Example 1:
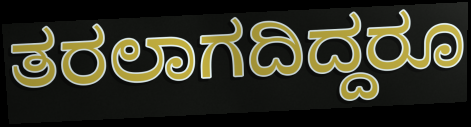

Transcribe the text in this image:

ತರಲಾಗದಿದ್ದರೂ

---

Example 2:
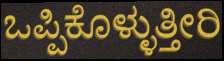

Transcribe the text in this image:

ಒಪ್ಪಿಕೊಳ್ಳುತ್ತೀರಿ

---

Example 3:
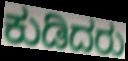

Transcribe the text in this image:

ಕುಡಿದರು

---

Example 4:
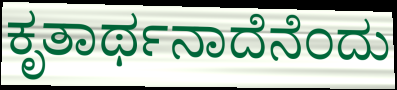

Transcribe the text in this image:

ಕೃತಾರ್ಥನಾದೆನೆಂದು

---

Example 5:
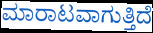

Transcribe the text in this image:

ಮಾರಾಟವಾಗುತ್ತಿದೆ